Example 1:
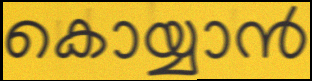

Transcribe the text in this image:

കൊയ്യാൻ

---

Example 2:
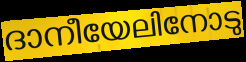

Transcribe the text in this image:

ദാനീയേലിനോടു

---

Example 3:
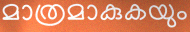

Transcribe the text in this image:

മാത്രമാകുകയും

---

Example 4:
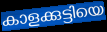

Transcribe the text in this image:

കാളക്കുട്ടിയെ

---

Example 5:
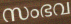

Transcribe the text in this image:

സംഭവ